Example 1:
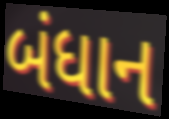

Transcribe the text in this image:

બંધાન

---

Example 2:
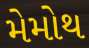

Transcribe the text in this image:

મેમોથ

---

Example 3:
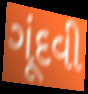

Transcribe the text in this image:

ગૂંદવી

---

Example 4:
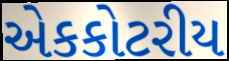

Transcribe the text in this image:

એકકોટરીય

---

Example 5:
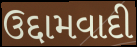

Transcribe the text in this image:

ઉદ્દામવાદી